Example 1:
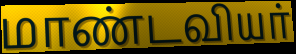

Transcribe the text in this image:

மாண்டவியர்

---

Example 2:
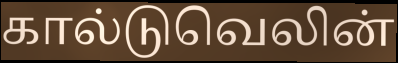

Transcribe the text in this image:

கால்டுவெலின்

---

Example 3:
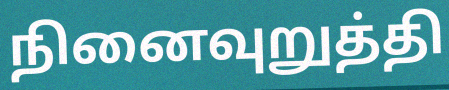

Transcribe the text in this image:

நினைவுறுத்தி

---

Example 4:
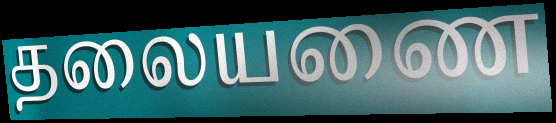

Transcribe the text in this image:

தலையணை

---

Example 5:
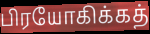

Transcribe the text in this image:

பிரயோகிக்கத்